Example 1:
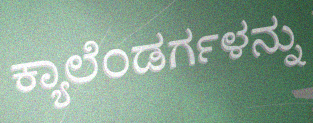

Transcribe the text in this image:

ಕ್ಯಾಲೆಂಡರ್ಗಳನ್ನು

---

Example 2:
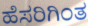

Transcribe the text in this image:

ಹೆಸರಿಗಿಂತ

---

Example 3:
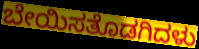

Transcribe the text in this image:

ಬೇಯಿಸತೊಡಗಿದಳು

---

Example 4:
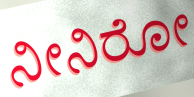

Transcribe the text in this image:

ನೀನಿರೋ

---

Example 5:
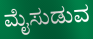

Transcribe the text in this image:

ಮೈಸುಡುವ